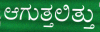
ಆಗುತ್ತಲಿತ್ತು